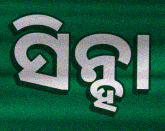
ସିନ୍ହା